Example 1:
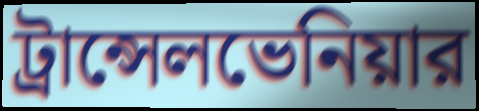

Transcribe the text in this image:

ট্রান্সেলভেনিয়ার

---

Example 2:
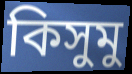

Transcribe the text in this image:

কিসুমু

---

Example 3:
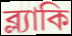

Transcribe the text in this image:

ব্ল্যাকি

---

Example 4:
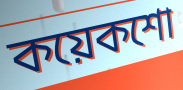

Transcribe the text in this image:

কয়েকশো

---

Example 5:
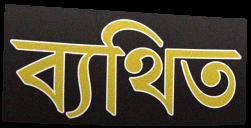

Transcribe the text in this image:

ব্যথিত